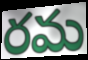
రమ